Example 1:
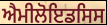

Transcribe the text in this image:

ਐਮੀਲੋਇਡਸਿਸ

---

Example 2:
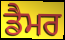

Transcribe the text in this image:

ਡੈਮਰ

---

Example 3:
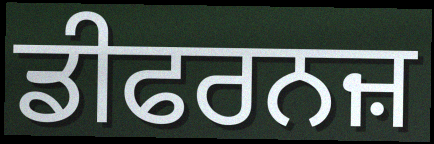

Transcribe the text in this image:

ਡੀਫਰਨਜ਼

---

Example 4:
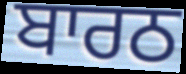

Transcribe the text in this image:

ਬਾਰਠ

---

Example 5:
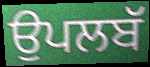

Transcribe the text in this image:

ਉਪਲਬੱ